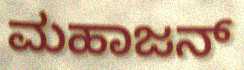
ಮಹಾಜನ್